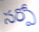
సర్పో